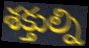
శక్తుల్ని